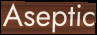
Aseptic